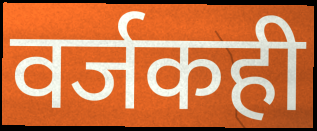
वर्जकही